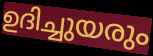
ഉദിച്ചുയരും